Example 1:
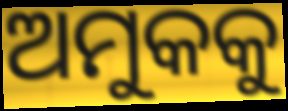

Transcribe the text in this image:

ଅମୁକକୁ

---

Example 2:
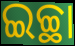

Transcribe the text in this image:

ଇଚ୍ଛା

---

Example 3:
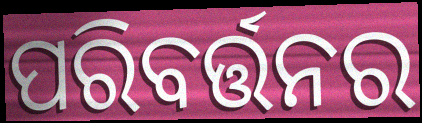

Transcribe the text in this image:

ପରିବର୍ତ୍ତନର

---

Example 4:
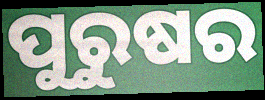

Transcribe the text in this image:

ପୁରୁଷର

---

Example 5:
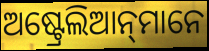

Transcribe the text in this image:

ଅଷ୍ଟ୍ରେଲିଆନ୍‌ମାନେ